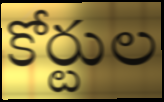
కోర్టుల